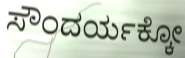
ಸೌಂದರ್ಯಕ್ಕೋ